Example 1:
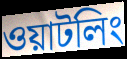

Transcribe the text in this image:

ওয়াটলিং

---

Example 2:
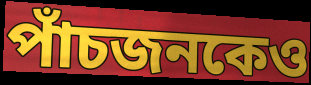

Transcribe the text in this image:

পাঁচজনকেও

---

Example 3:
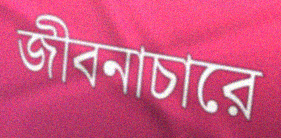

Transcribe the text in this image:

জীবনাচারে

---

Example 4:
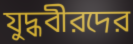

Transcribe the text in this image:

যুদ্ধবীরদের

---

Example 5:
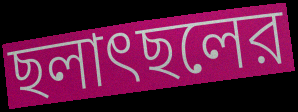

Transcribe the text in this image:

ছলাৎছলের